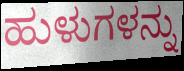
ಹುಳುಗಳನ್ನು